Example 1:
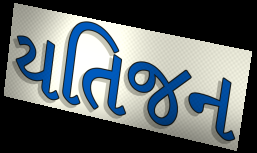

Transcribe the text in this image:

યતિજન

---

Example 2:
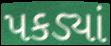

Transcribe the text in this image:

પકડ્યાં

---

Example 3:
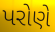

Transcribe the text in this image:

પરોણે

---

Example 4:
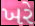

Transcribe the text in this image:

ખરે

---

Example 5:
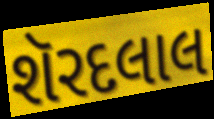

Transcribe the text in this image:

શૅરદલાલ